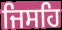
ਜਿਸਹਿ